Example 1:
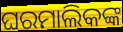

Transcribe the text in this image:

ଘରମାଲିକଙ୍କ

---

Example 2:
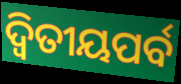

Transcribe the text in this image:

ଦ୍ୱିତୀୟପର୍ବ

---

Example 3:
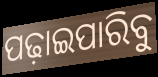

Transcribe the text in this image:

ପଢ଼ାଇପାରିବୁ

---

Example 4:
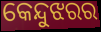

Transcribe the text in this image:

କେନ୍ଦୁଝରର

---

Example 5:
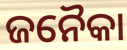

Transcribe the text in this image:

ଜନୈକା